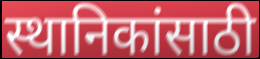
स्थानिकांसाठी